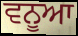
ਵਨੂਆ